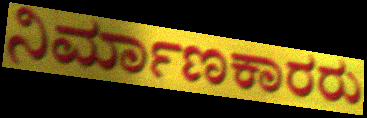
ನಿರ್ಮಾಣಕಾರರು